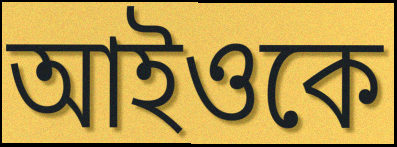
আইওকে